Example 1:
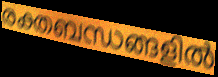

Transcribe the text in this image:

രക്തബന്ധങ്ങളിൽ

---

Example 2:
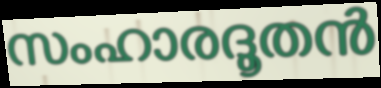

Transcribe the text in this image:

സംഹാരദൂതൻ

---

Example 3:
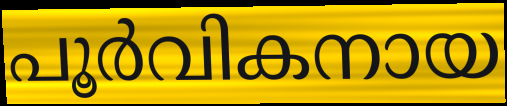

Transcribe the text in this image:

പൂർവികനായ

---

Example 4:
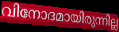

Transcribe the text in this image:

വിനോദമായിരുന്നില്ല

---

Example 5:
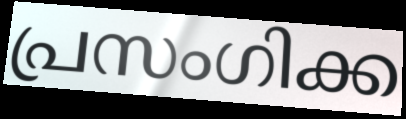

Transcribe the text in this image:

പ്രസംഗിക്ക